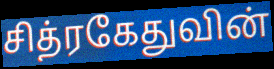
சித்ரகேதுவின்